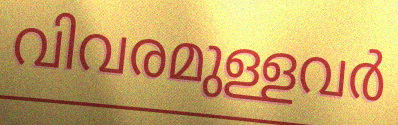
വിവരമുള്ളവർ